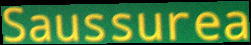
Saussurea